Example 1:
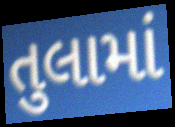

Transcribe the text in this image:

તુલામાં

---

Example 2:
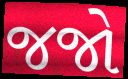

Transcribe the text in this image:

જજો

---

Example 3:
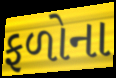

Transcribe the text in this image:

ફળોના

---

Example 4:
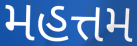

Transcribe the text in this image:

મહત્તમ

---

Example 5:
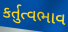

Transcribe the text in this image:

કર્તુત્વભાવ